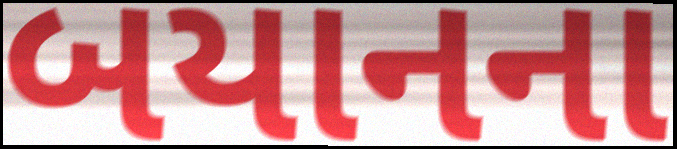
બયાનના